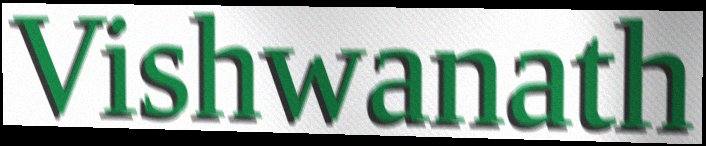
Vishwanath